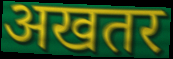
अखतर